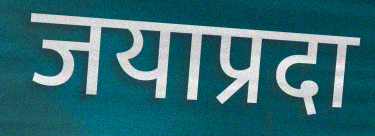
जयाप्रदा